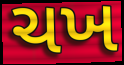
ચખ